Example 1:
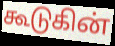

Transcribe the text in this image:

கூடுகின்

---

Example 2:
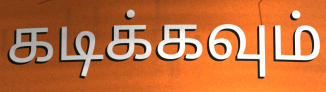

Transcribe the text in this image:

கடிக்கவும்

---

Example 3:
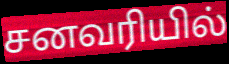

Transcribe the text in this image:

சனவரியில்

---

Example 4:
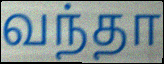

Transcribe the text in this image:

வந்தா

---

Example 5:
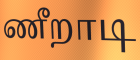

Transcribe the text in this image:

ணீறாடி